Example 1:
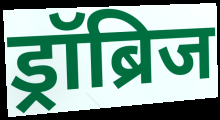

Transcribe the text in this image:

ड्रॉब्रिज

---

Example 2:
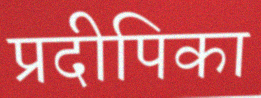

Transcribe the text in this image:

प्रदीपिका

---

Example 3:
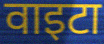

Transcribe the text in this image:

वाइटा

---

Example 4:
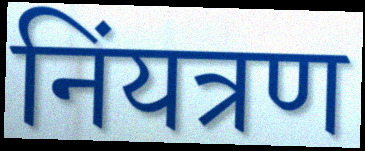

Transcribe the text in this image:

निंयत्रण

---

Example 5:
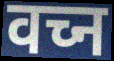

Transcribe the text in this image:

वच्न